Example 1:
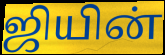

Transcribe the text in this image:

ஜியின்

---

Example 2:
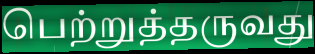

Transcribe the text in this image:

பெற்றுத்தருவது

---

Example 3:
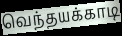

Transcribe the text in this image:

வெந்தயக்காடி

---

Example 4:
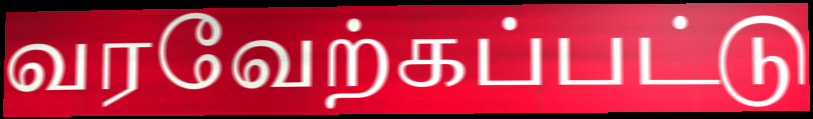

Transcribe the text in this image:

வரவேற்கப்பட்டு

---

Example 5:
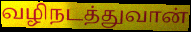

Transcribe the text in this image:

வழிநடத்துவான்